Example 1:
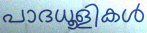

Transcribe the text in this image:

പാദധൂളികൾ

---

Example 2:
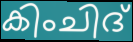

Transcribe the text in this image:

കിംചിദ്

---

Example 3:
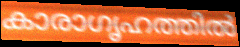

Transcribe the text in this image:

കാരാഗൃഹത്തിൽ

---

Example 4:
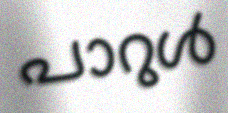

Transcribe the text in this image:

പാറുൾ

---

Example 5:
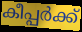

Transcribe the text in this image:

കീപ്പർക്ക്